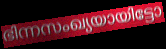
ഭിന്നസംഖ്യയായിട്ടോ